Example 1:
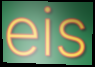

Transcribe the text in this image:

eis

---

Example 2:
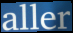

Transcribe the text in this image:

aller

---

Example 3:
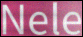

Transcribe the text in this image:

Nele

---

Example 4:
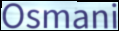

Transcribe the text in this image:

Osmani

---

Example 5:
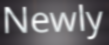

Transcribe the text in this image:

Newly